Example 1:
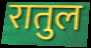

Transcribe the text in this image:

रातुल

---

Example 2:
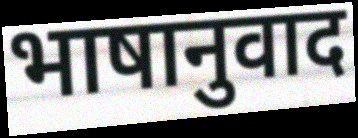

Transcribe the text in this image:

भाषानुवाद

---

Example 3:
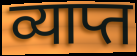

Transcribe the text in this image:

व्‍याप्‍त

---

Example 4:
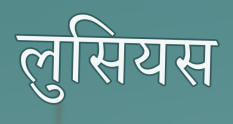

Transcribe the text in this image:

लुसियस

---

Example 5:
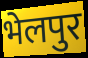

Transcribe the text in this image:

भेलपुर